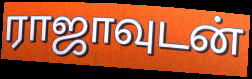
ராஜாவுடன்